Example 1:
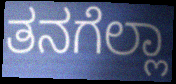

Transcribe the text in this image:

ತನಗೆಲ್ಲಾ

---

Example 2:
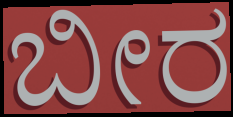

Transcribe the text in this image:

ಬೀರ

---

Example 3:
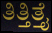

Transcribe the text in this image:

ತಿತ್ತಿತ್ತೈ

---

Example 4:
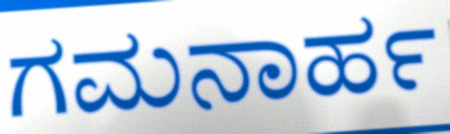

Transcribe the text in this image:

ಗಮನಾರ್ಹ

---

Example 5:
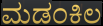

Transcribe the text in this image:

ಮಡಂಕಿಲ